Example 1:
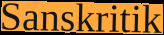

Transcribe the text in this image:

Sanskritik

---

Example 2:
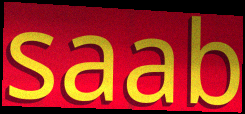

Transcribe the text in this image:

saab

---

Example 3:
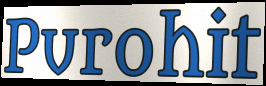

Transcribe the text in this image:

Purohit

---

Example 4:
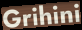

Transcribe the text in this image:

Grihini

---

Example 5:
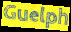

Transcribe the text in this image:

Guelph